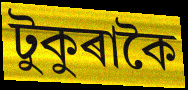
টুকুৰাকৈ